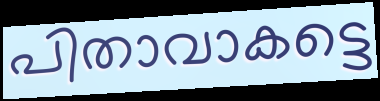
പിതാവാകട്ടെ